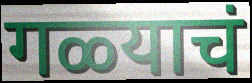
गळ्याचं